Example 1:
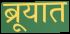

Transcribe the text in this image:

ब्रूयात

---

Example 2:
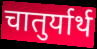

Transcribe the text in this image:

चातुर्यार्थ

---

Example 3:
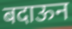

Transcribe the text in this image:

बदाऊन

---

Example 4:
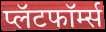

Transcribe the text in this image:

प्लॅटफॉर्म्स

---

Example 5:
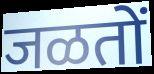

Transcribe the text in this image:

जळतों